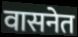
वासनेत